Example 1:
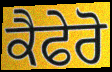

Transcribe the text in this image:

ਕੈਫੇਰੋ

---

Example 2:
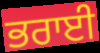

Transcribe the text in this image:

ਭਰਾਈ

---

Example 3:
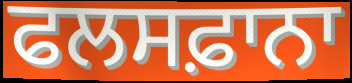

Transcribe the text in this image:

ਫਲਸਫ਼ਾਨਾ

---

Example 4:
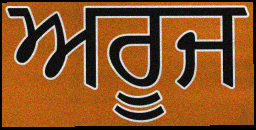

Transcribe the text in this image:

ਅਰੂਜ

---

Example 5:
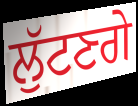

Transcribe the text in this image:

ਲੁੱਟਣਗੇ